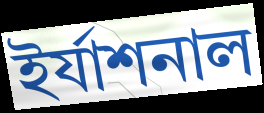
ইর্যাশনাল